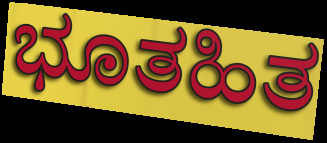
ಭೂತಹಿತ